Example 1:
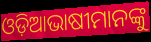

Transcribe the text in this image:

ଓଡ଼ିଆଭାଷୀମାନଙ୍କୁ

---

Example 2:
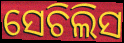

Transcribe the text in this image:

ସେଚିଲିସ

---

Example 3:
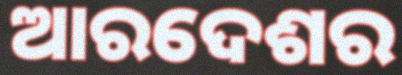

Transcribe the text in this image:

ଆରଦେଶର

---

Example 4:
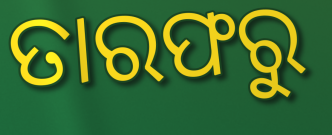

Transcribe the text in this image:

ତାରଫରୁ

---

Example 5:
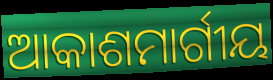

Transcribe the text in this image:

ଆକାଶମାର୍ଗୀୟ